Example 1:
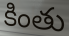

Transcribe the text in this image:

కింతు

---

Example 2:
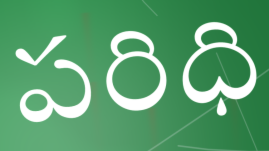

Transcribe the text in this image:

పరిధి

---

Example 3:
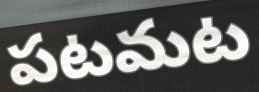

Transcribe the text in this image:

పటమట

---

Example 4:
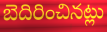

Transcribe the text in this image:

బెదిరించినట్లు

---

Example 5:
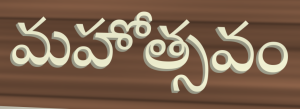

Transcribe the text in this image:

మహోత్సవం